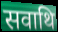
सवाथि